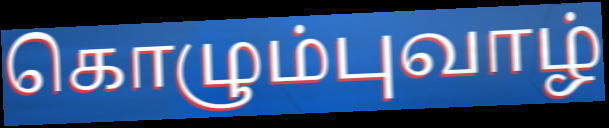
கொழும்புவாழ்